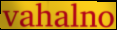
vahalno